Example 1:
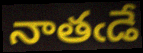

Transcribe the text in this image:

నాతఁడే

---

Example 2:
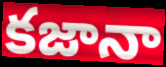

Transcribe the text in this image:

కజానా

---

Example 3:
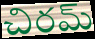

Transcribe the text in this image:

చిరమ్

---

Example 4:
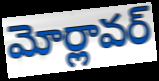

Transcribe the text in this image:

మోర్లావర్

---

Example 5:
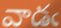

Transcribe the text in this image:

వాడఁ